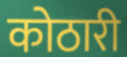
कोठारी